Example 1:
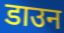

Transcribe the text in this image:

डाउन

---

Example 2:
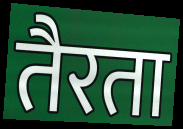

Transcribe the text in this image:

तैरता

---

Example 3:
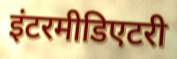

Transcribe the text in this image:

इंटरमीडिएटरी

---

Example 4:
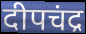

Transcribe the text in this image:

दीपचंद्र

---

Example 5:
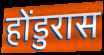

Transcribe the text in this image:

होंडुरास